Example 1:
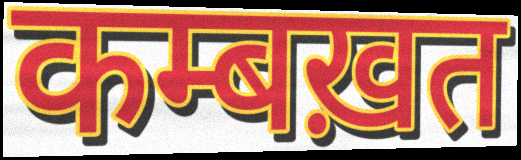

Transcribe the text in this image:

कम्बख़त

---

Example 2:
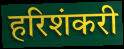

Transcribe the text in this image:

हरिशंकरी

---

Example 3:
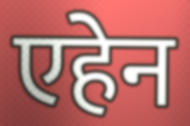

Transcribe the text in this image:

एहेन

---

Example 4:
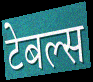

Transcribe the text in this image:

टेबल्स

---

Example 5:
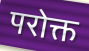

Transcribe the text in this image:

परोक्त